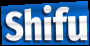
Shifu